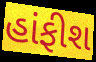
હાંફીશ